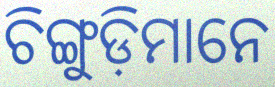
ଚିଙ୍ଗୁଡ଼ିମାନେ